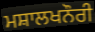
ਮਸ਼ਾਲਖਨੌਰੀ